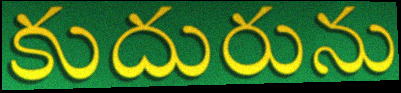
కుదురును